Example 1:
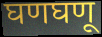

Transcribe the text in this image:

घणघणू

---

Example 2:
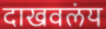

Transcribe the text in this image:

दाखवलंय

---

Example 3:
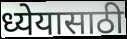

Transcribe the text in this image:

ध्येयासाठी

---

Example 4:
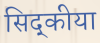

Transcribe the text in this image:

सिद्‌कीया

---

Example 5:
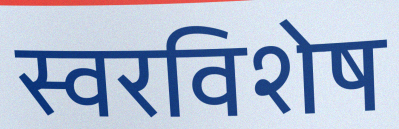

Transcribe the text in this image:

स्वरविशेष